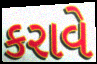
કરાવે